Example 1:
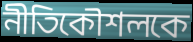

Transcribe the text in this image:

নীতিকৌশলকে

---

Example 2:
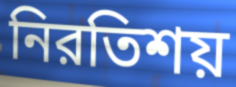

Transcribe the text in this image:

নিরতিশয়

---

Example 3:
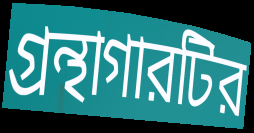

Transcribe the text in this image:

গ্রন্থাগারটির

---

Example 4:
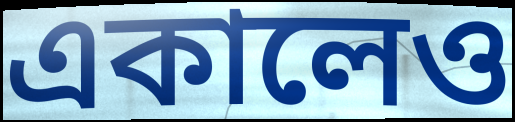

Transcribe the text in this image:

একালেও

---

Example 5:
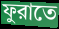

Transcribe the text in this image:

ফুরাতে